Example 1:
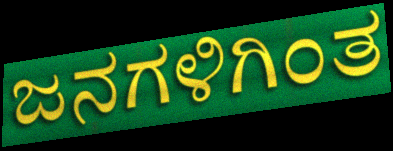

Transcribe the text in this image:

ಜನಗಳಿಗಿಂತ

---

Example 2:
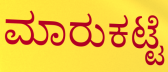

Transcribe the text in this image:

ಮಾರುಕಟ್ಟೆ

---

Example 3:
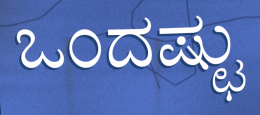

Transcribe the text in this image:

ಒಂದಷ್ಟು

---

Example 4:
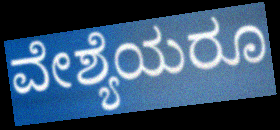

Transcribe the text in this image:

ವೇಶ್ಯೆಯರೂ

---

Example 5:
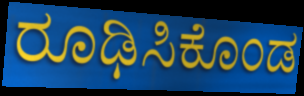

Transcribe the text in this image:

ರೂಢಿಸಿಕೊಂಡ